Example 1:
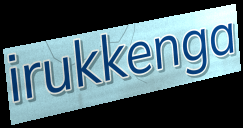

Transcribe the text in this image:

irukkenga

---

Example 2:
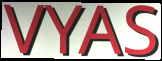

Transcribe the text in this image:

VYAS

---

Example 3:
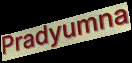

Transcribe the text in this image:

Pradyumna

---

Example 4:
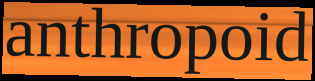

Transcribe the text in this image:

anthropoid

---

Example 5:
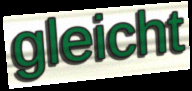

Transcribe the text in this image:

gleicht